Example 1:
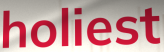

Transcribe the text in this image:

holiest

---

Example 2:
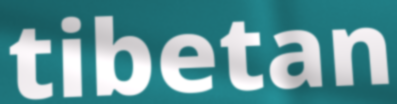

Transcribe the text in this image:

tibetan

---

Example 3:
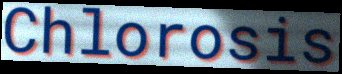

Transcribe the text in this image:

Chlorosis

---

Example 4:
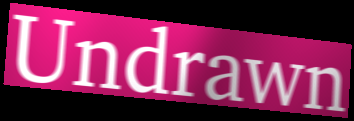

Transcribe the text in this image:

Undrawn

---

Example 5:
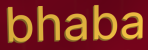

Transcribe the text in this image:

bhaba